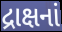
દ્રાક્ષનાં